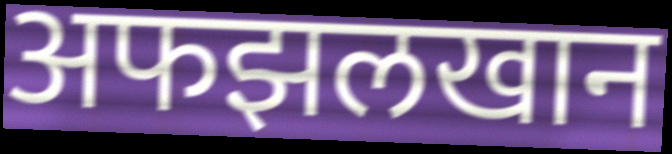
अफझलखान